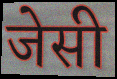
जेसी